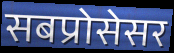
सबप्रोसेसर